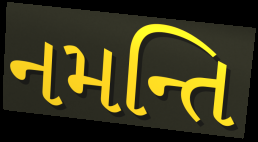
નમન્તિ